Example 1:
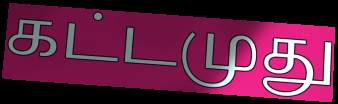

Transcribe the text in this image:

கட்டமுது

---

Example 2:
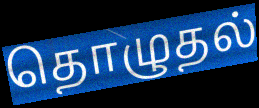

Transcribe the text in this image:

தொழுதல்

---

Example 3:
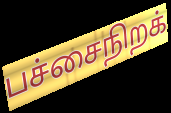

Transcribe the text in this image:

பச்சைநிறக்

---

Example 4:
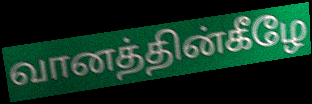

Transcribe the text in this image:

வானத்தின்கீழே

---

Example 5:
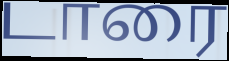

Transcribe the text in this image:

டாரை